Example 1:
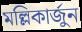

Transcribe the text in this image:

মল্লিকার্জুন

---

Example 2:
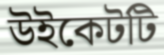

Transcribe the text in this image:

উইকেটটি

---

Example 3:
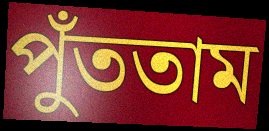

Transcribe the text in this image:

পুঁততাম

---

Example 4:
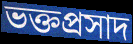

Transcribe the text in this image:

ভক্তপ্রসাদ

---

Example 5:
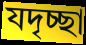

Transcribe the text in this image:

যদৃচ্ছা